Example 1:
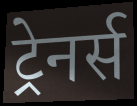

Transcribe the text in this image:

ट्रेनर्स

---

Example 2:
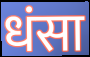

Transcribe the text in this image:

धंसा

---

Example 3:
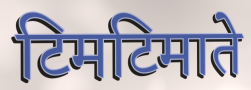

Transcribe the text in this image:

टिमटिमाते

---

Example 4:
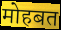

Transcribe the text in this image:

मोहबत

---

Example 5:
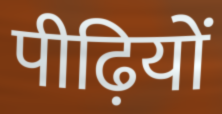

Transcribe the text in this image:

पीढ़ियों